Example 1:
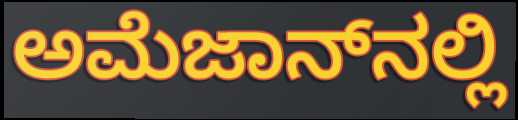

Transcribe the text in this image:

ಅಮೆಜಾನ್‌ನಲ್ಲಿ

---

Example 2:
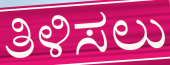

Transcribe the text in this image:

ತಿಳಿಸಲು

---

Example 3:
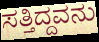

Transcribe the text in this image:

ಸತ್ತಿದ್ದವನು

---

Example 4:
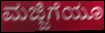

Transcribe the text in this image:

ಮಜ್ಜಿಗೆಯೂ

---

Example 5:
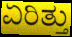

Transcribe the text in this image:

ಏರಿತ್ತು